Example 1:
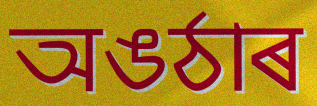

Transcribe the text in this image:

অঙঠাৰ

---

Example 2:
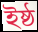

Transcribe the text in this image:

ইষ্ঠ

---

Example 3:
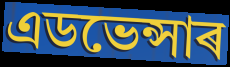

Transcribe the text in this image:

এডভেন্সাৰ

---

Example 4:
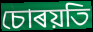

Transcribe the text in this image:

চোৰয়তি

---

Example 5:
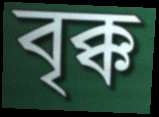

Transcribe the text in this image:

বৃক্ক